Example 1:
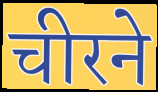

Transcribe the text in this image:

चीरने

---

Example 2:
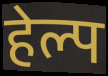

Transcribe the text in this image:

हेल्प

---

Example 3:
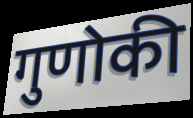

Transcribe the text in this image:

गुणोकी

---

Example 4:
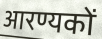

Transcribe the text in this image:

आरण्यकों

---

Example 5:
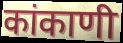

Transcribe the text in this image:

कांकाणी